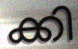
ക്കി